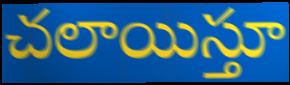
చలాయిస్తూ